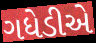
ગધેડીએ